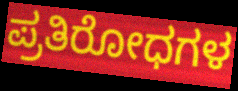
ಪ್ರತಿರೋಧಗಳ